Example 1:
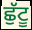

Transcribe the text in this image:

ਛੁੱਟੂ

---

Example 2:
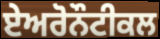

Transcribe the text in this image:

ਏਅਰੋਨੌਟੀਕਲ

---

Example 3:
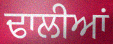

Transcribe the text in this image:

ਢਾਲੀਆਂ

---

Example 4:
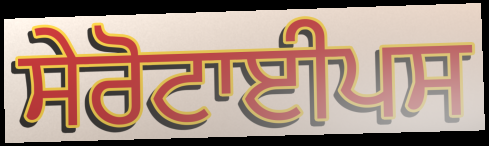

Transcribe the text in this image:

ਸੇਰੋਟਾਈਪਸ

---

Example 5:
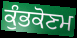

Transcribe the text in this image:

ਕੁੰਭਕੋਣਮ